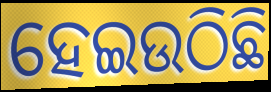
ହେଇଉଠିଛି